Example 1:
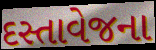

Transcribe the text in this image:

દસ્તાવેજના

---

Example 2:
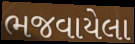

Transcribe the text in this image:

ભજવાયેલા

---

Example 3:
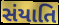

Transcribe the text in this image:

સંયાતિ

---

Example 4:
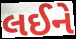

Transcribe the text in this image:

લઈને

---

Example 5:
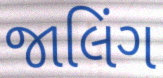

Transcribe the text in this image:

જાલિંગ